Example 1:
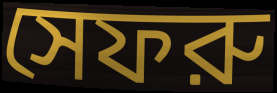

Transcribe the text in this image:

সেফরু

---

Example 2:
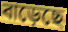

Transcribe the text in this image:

বাড়েছে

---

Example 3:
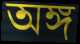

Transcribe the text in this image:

অঙ্গ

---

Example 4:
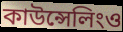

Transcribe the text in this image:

কাউন্সেলিংও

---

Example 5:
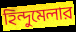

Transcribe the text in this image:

হিন্দুমেলার